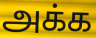
அக்க